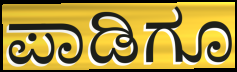
ಪಾಡಿಗೂ